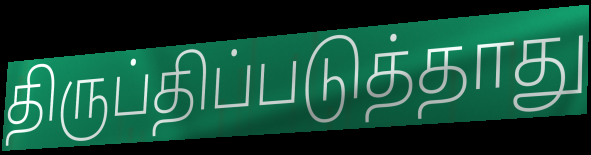
திருப்திப்படுத்தாது